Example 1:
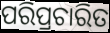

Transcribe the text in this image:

ପରିପ୍ରଚାରିତ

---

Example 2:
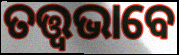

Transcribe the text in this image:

ତତ୍ତ୍ଵଭାବେ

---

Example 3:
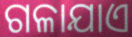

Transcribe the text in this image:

ଗଳାଯାଏ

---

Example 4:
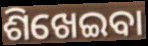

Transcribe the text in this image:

ଶିଖେଇବା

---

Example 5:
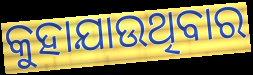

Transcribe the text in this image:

କୁହାଯାଉଥିବାର